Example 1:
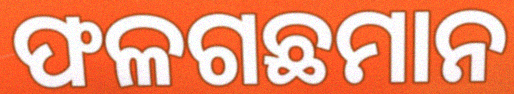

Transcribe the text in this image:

ଫଳଗଛମାନ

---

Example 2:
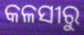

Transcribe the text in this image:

କଳସୀରୁ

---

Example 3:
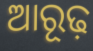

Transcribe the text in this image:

ଆରୂଢ଼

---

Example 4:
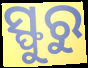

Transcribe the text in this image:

ସ୍ଫୁରୁ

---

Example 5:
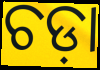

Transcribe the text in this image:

ଚଡ଼ା